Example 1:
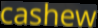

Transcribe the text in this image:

cashew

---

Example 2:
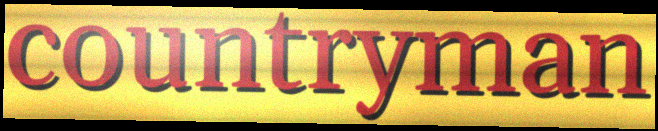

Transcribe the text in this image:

countryman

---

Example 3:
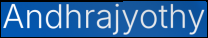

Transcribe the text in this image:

Andhrajyothy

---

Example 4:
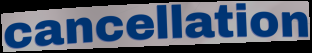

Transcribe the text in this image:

cancellation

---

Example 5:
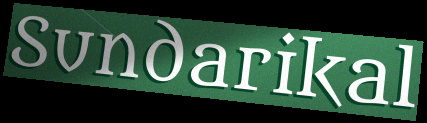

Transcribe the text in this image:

Sundarikal